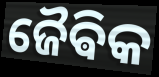
ଜୈଵିକ